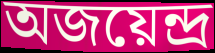
অজয়েন্দ্র